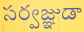
సర్వజ్ఞుడా